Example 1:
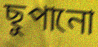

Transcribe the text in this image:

ছুপানো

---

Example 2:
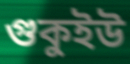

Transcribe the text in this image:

গুকুইউ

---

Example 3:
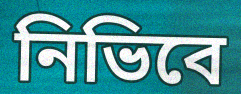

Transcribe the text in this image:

নিভিবে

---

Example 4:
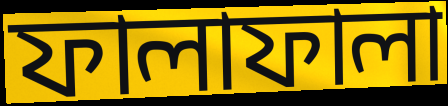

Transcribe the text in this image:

ফালাফালা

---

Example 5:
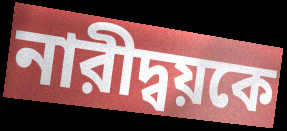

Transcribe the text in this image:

নারীদ্বয়কে